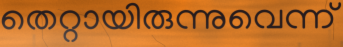
തെറ്റായിരുന്നുവെന്ന്